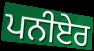
ਪਨੀਏਰ